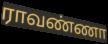
ராவண்ணா